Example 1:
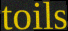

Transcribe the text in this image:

toils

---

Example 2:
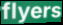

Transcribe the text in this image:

flyers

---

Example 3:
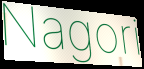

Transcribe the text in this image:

Nagori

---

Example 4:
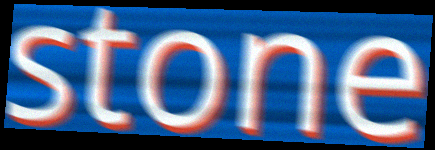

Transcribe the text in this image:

stone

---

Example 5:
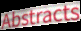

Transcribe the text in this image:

Abstracts